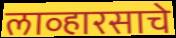
लाव्हारसाचे